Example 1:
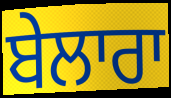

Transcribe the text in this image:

ਬੇਲਾਰਾ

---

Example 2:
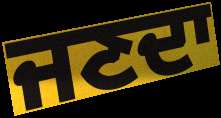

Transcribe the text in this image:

ਜਣਦਾ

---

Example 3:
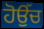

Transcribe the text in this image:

ਹੋਉੱਚ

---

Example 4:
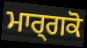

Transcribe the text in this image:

ਮਾਰ੍ਗਕੋ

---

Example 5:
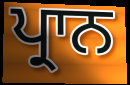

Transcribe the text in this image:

ਪ੍ਰਾਨ